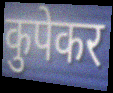
कुपेकर